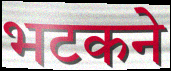
भटकने